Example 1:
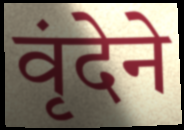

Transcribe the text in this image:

वृंदेने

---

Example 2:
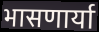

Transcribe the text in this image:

भासणार्या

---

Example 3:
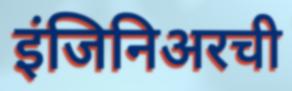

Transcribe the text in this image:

इंजिनिअरची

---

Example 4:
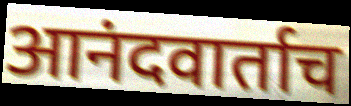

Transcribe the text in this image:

आनंदवार्ताच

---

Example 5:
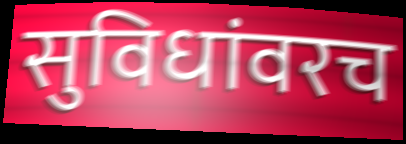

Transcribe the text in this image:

सुविधांवरच